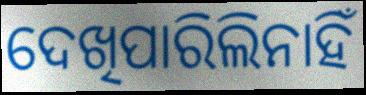
ଦେଖିପାରିଲିନାହିଁ